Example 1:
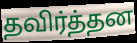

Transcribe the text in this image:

தவிர்த்தன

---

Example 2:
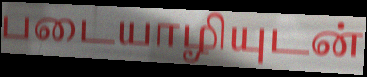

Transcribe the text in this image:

படையாழியுடன்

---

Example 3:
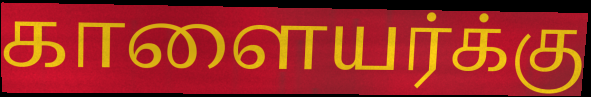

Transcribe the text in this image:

காளையர்க்கு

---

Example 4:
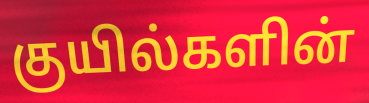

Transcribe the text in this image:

குயில்களின்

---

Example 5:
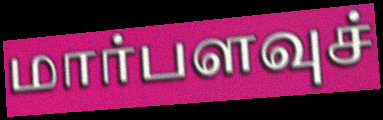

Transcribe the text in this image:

மார்பளவுச்